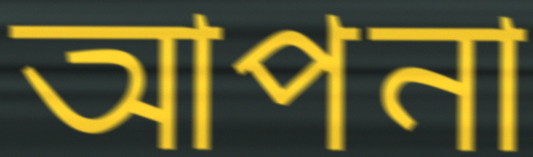
আপনা